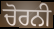
ਚੋਰਨੀ